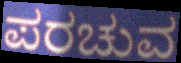
ಪರಚುವ